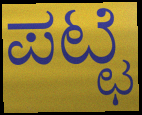
ಪಟ್ಟೆ